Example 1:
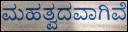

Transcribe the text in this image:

ಮಹತ್ವದವಾಗಿವೆ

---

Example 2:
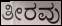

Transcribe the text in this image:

ತೀರವು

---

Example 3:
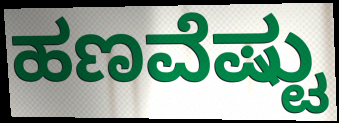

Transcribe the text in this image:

ಹಣವೆಷ್ಟು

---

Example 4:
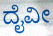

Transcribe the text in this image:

ದೈವೀ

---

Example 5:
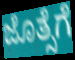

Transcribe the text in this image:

ಜೊತ್ಸೆಗೆ